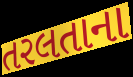
તરલતાના